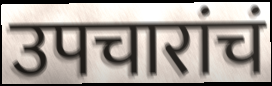
उपचारांचं